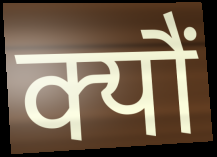
क्यौं